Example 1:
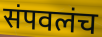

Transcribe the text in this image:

संपवलंच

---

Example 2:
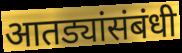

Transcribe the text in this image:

आतड्यांसंबंधी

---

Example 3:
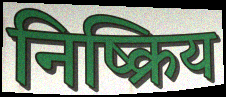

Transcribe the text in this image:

निष्क्रिय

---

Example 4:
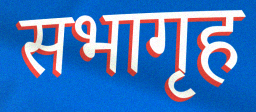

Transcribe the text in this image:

सभागृह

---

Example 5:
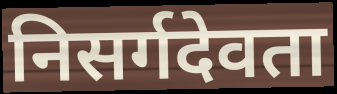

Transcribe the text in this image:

निसर्गदेवता